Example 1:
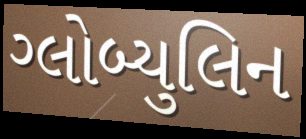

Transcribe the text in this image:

ગ્લોબ્યુલિન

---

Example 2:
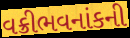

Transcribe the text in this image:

વક્રીભવનાંકની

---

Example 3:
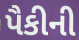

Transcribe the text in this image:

પૈકીની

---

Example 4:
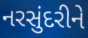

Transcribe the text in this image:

નરસુંદરીને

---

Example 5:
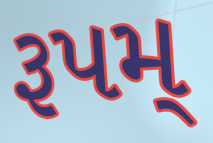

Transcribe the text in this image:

રૂપમ્